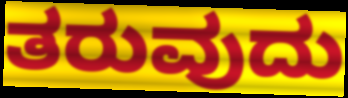
ತರುವುದು